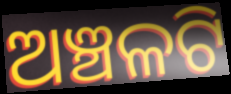
ଅଞ୍ଚଳଟି